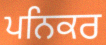
ਪਨਿਕਰ